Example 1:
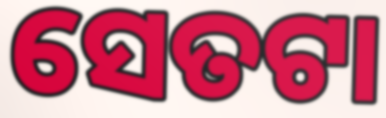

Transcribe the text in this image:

ସେତଟା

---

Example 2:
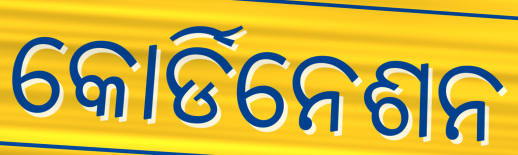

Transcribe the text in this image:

କୋର୍ଡିନେଶନ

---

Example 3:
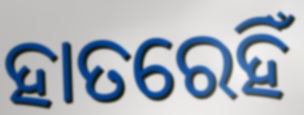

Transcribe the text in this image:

ହାତରେହିଁ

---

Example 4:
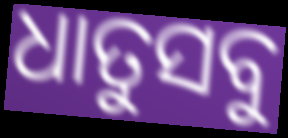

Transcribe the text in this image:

ଧାତୁସବୁ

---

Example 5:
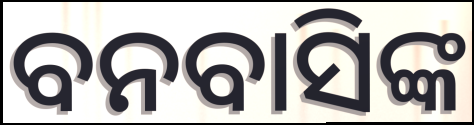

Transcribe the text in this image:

ବନବାସିଙ୍କ